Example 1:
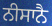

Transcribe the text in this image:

ਨੀਸਾਨੈ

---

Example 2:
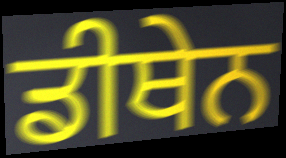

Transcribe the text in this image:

ਡੀਥੇਨ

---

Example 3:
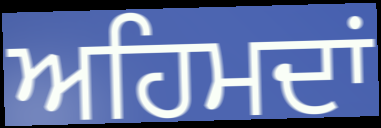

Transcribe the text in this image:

ਅਹਿਮਦਾਂ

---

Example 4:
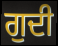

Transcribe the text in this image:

ਗੁਦੀ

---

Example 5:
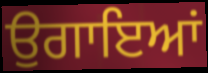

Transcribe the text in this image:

ਉਗਾਇਆਂ